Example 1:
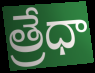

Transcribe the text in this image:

త్రేధా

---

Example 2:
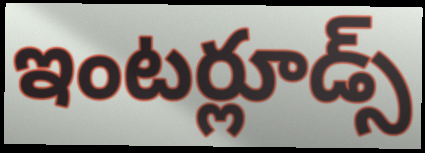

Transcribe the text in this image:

ఇంటర్లూడ్స్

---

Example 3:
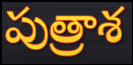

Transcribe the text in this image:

పుత్రాశ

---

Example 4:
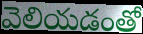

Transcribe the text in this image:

వెలియడంతో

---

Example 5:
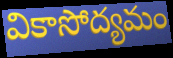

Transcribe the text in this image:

వికాసోద్యమం